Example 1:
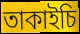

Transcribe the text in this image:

তাকাইচি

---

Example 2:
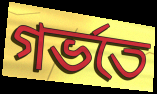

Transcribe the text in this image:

গৰ্ভতে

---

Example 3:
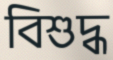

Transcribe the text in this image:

বিশুদ্ধ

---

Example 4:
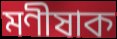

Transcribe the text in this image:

মণীষাক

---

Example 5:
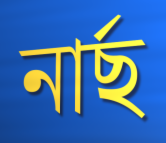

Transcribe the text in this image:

নাৰ্ছ